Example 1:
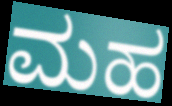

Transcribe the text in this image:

ಮಹ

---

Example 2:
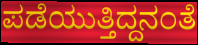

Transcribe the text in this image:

ಪಡೆಯುತ್ತಿದ್ದನಂತೆ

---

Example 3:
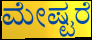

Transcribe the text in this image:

ಮೇಷ್ಟರೆ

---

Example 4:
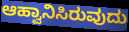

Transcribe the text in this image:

ಆಹ್ವಾನಿಸಿರುವುದು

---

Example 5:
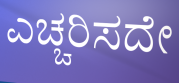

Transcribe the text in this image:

ಎಚ್ಚರಿಸದೇ